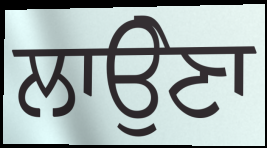
ਲਾਉੇਣਾ